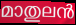
മാതുലൻ